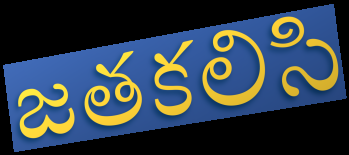
జతకలిసి